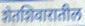
शेतशिवारातील